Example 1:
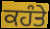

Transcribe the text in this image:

ਕਹੰਤੇ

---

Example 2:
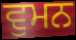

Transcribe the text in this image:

ਵੁਮਨ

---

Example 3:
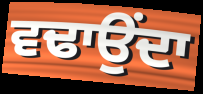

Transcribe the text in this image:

ਵਢਾਉਂਦਾ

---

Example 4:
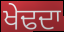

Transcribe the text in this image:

ਖੇਢਦਾ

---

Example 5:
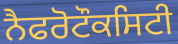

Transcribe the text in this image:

ਨੈਫਰੋਟੌਕਸਿਟੀ